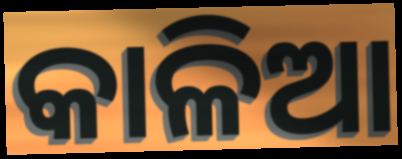
କାଳିଆ